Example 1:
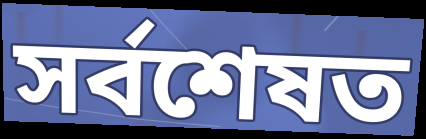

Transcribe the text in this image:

সৰ্বশেষত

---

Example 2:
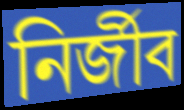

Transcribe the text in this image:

নিৰ্জীব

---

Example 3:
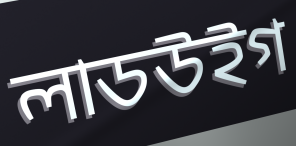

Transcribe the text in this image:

লাডউইগ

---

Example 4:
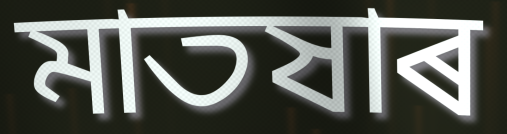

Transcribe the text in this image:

মাতষাৰ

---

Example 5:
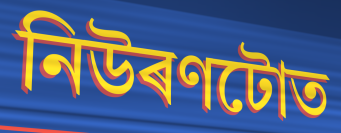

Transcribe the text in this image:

নিউৰণটোত